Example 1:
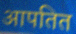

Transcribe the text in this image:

आपतित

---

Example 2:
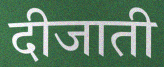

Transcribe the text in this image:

दीजाती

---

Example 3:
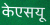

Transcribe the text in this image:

केएसयू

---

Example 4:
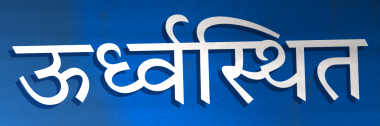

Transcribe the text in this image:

ऊर्ध्वस्थित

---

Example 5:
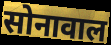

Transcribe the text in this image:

सोनावाल